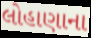
લોહાણાના